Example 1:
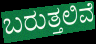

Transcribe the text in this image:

ಬರುತ್ತಲಿವೆ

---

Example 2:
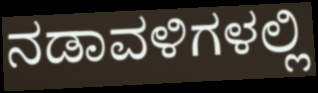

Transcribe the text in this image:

ನಡಾವಳಿಗಳಲ್ಲಿ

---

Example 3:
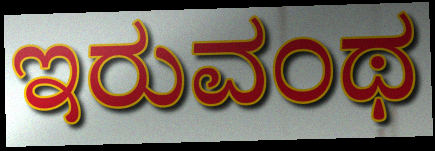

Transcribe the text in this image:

ಇರುವಂಥ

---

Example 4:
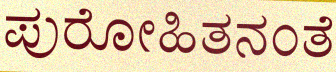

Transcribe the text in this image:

ಪುರೋಹಿತನಂತೆ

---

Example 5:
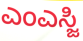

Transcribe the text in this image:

ಎಂಎಸ್ಜಿ